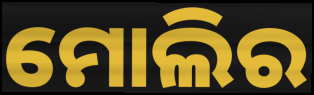
ମୋଲିର